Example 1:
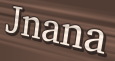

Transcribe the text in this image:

Jnana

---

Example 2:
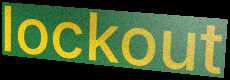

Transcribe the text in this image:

lockout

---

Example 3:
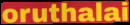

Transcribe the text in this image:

oruthalai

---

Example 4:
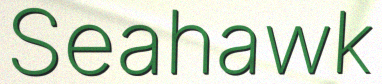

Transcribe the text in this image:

Seahawk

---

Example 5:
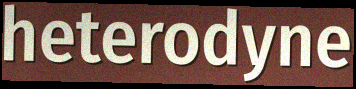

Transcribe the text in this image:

heterodyne